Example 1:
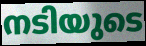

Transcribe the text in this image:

നടിയുടെ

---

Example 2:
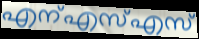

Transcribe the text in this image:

എന്എസ്എസ്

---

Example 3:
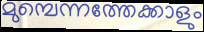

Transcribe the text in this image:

മുമ്പെന്നത്തേക്കാളും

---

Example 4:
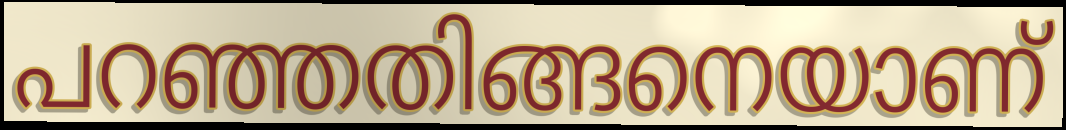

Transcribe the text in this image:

പറഞ്ഞതിങ്ങനെയാണ്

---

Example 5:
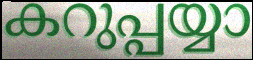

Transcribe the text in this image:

കറുപ്പയ്യാ